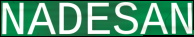
NADESAN